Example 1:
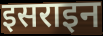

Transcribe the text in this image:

इसराइन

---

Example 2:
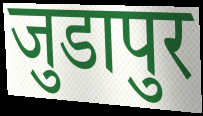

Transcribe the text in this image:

जुडापुर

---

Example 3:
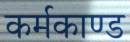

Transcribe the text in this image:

कर्मकाण्ड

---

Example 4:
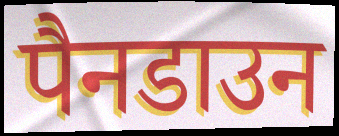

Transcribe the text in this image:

पैनडाउन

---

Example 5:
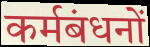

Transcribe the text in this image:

कर्मबंधनों